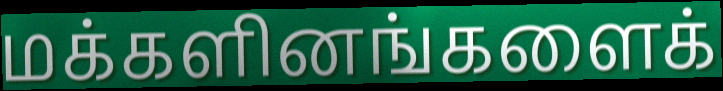
மக்களினங்களைக்